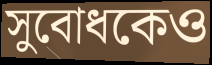
সুবোধকেও